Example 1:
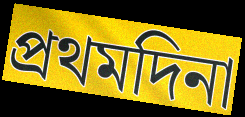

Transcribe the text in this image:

প্ৰথমদিনা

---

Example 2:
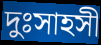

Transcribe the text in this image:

দুঃসাহসী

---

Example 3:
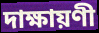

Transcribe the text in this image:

দাক্ষায়ণী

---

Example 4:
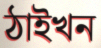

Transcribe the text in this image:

ঠাইখন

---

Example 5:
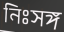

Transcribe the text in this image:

নিঃসঙ্গ